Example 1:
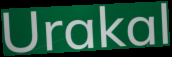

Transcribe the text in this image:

Urakal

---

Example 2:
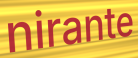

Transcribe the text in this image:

nirante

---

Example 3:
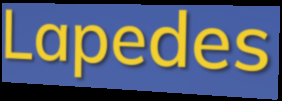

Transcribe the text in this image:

Lapedes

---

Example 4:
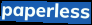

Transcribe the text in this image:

paperless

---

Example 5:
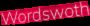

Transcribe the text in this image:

Wordswoth